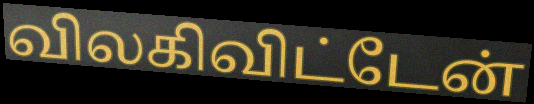
விலகிவிட்டேன்